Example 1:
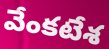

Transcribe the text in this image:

వేంకటేశ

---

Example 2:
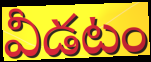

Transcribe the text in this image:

వీడటం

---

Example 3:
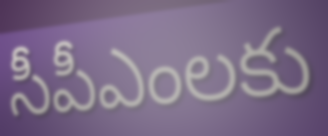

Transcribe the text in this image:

సీపీఎంలకు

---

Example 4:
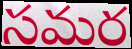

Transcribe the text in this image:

సమర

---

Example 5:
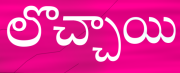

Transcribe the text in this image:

లొచ్చాయి